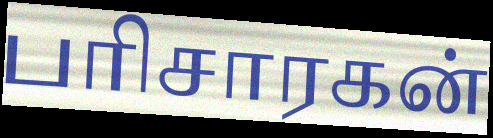
பரிசாரகன்